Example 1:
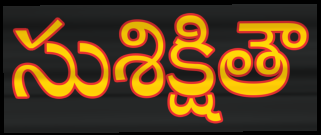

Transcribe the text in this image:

సుశిక్షితౌ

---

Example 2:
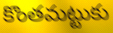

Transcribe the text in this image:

కొంతమట్టుకు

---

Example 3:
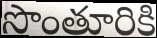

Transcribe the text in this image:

సొంతూరికి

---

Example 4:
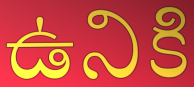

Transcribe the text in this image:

ఉనికి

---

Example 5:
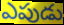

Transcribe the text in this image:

ఎపుడు